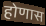
होणास